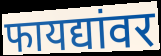
फायद्यांवर